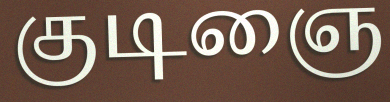
குடிஞை